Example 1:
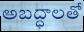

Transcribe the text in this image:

అబద్ధాలతో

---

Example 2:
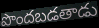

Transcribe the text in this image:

పొందబడతాడు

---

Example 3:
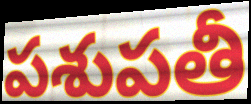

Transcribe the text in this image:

పశుపతీ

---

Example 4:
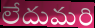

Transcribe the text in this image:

లేదుమరి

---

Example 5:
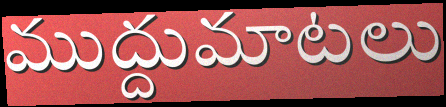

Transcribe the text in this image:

ముద్దుమాటలు